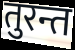
तुरन्त